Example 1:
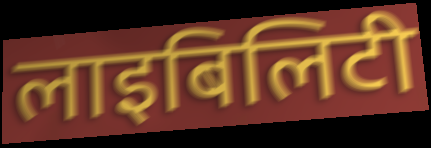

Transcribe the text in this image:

लाइबिलिटी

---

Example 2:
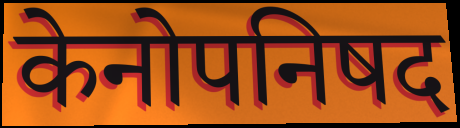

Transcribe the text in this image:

केनोपनिषद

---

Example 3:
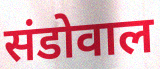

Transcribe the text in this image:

संडोवाल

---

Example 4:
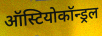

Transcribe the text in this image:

ऑस्टियोकॉन्ड्रल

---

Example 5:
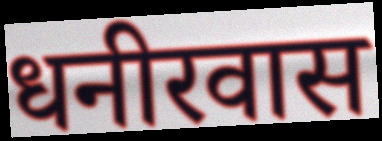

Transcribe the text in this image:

धनीरवास